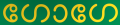
ഗോഗേ